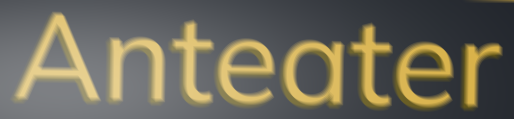
Anteater